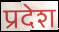
प्रदेश